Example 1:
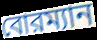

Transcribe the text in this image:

বোরম্যান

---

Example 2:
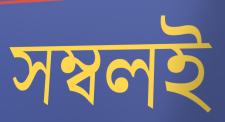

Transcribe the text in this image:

সম্বলই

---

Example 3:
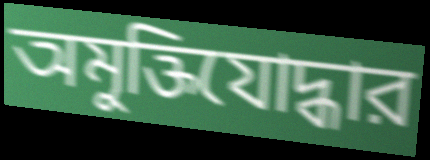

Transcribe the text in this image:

অমুক্তিযোদ্ধার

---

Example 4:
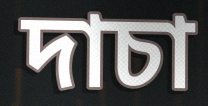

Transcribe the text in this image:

দাচা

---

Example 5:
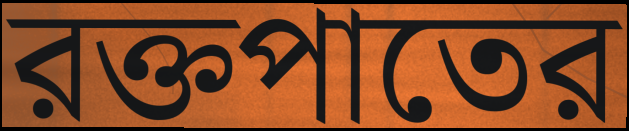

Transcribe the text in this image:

রক্তপাতের